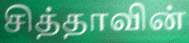
சித்தாவின்